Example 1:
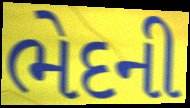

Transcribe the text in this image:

ભેદની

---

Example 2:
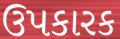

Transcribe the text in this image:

ઉપકારક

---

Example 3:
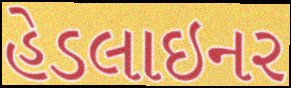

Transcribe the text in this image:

હેડલાઇનર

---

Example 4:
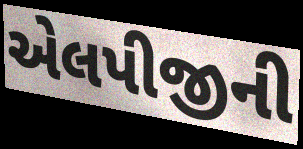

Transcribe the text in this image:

એલપીજીની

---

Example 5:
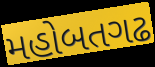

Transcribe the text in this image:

મહોબતગઢ